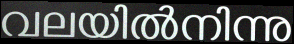
വലയിൽനിന്നു